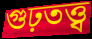
গুঢ়তত্ত্ব